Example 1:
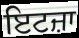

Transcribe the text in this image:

ਇਟਜ਼ਾ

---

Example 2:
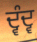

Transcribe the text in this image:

ਦ੍ਵੰਦ੍ਵ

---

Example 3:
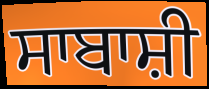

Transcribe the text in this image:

ਸਾਬਾਸ਼ੀ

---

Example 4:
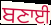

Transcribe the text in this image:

ਬਣਾਈ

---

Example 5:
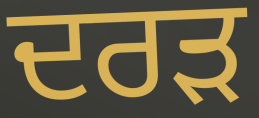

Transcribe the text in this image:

ਦਰੜ